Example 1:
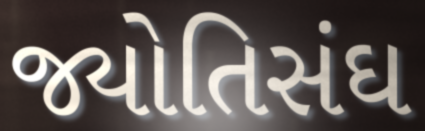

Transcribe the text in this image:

જ્યોતિસંઘ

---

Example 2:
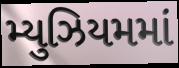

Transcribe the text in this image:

મ્યુઝિયમમાં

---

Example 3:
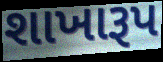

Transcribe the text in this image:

શાખારૂપ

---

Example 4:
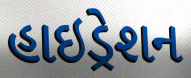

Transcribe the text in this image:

હાઇડ્રેશન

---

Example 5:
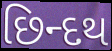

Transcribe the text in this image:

છિન્દથ